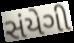
સંયેગી